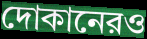
দোকানেরও